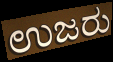
ಉಜರು